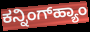
ಕನ್ನಿಂಗ್‌ಹ್ಯಾಂ